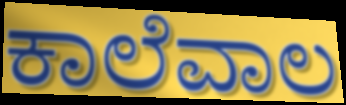
ಕಾಲೆವಾಲ